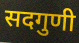
सदगुणी